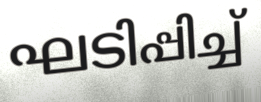
ഘടിപ്പിച്ച്